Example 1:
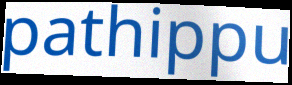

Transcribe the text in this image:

pathippu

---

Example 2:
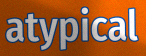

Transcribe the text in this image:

atypical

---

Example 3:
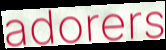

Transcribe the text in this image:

adorers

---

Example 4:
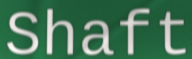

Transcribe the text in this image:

Shaft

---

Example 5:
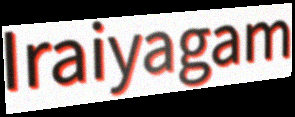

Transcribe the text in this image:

Iraiyagam